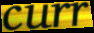
curr